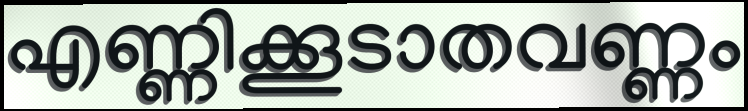
എണ്ണിക്കൂടാതവണ്ണം